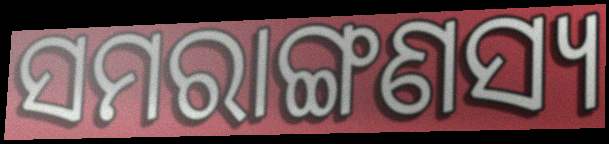
ସମରାଙ୍ଗଣସ୍ୟ